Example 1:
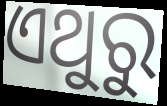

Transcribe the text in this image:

ଏଥୁରୁ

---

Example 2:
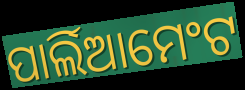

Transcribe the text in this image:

ପାର୍ଲିଆମେଂଟ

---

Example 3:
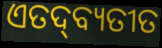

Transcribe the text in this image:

ଏତଦ୍‍ବ୍ୟତୀତ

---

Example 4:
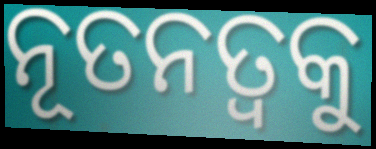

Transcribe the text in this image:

ନୂତନତ୍ବକୁ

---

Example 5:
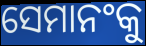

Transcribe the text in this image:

ସେମାନଂକୁ